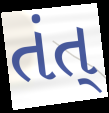
તંત્